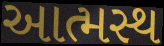
આત્મસ્થ